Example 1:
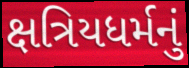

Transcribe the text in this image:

ક્ષત્રિયધર્મનું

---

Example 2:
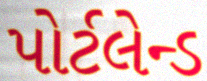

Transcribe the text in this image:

પોર્ટલેન્ડ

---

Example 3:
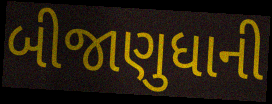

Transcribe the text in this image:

બીજાણુધાની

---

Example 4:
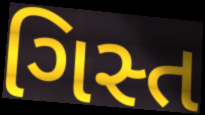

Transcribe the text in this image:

ગિસ્ત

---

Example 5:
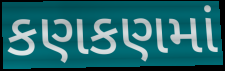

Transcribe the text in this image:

કણકણમાં